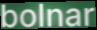
bolnar